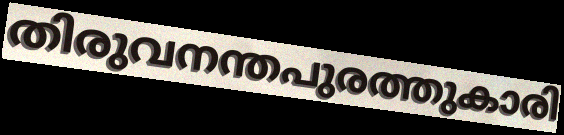
തിരുവനന്തപുരത്തുകാരി